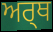
ਅਰ੍ਥ